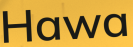
Hawa